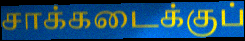
சாக்கடைக்குப்